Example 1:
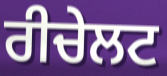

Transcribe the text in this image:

ਰੀਚੇਲਟ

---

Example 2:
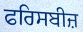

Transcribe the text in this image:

ਫਰਿਸਬੀਜ਼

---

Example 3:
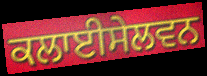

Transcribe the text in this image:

ਕਲਾਈਸੇਲਵਨ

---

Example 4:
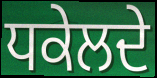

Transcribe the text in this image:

ਧਕੇਲਦੇ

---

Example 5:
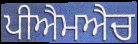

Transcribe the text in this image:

ਪੀਐਮਐਚ